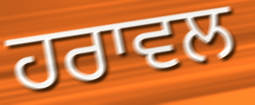
ਹਰਾਵਲ